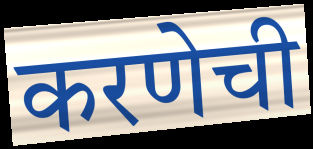
करणेची